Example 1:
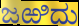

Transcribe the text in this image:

ಜಱಿದು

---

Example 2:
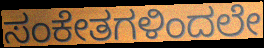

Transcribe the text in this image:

ಸಂಕೇತಗಳಿಂದಲೇ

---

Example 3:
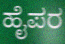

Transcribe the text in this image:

ಹೈಪರ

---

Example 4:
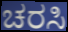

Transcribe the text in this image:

ಚರಸಿ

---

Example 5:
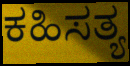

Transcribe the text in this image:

ಕಹಿಸತ್ಯ